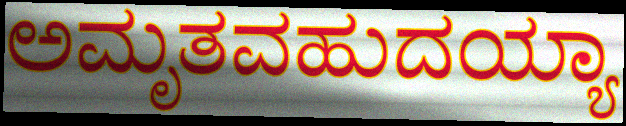
ಅಮೃತವಹುದಯ್ಯಾ